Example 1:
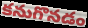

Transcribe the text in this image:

కనుగొనడం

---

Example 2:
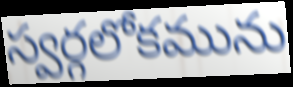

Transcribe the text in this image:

స్వర్గలోకమును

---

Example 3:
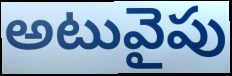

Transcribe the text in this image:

అటువైపు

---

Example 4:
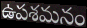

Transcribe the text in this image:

ఉపశమనం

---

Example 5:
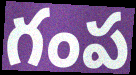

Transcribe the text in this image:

గంప